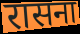
रासना